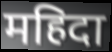
महिदा